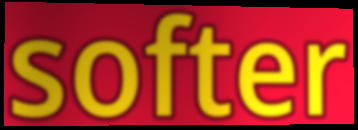
softer